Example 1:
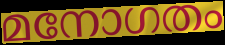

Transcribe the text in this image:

മനോഗതം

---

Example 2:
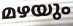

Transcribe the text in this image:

മഴയും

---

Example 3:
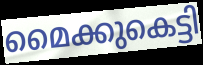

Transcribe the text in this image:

മൈക്കുകെട്ടി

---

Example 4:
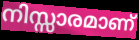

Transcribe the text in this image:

നിസ്സാരമാണ്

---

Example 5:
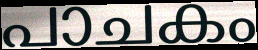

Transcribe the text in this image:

പാചകം